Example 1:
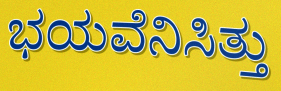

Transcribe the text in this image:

ಭಯವೆನಿಸಿತ್ತು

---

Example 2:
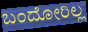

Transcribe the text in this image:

ಬಂದೋರಿಲ್ಲ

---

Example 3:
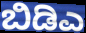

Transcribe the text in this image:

ಬಿಡಿಎ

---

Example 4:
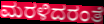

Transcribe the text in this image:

ಮರಳಿದರಂತೆ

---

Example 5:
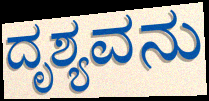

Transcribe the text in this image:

ದೃಶ್ಯವನು